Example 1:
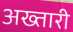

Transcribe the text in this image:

अख्तारी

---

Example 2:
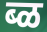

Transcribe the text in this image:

ब्ळ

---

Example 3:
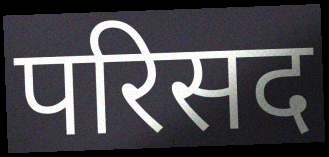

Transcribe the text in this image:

परिसद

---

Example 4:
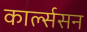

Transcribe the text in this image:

कार्ल्ससन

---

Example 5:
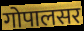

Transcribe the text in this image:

गोपालसर